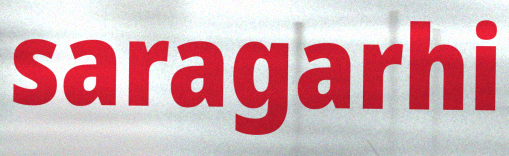
saragarhi